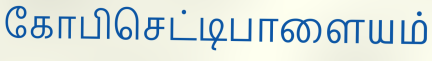
கோபிசெட்டிபாளையம்